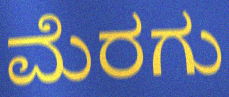
ಮೆರಗು